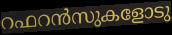
റഫറൻസുകളോടു